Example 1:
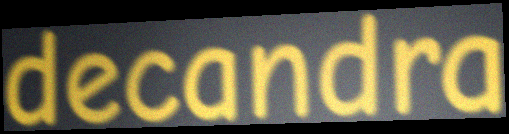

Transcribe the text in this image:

decandra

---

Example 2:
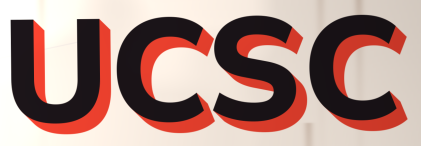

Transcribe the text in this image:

UCSC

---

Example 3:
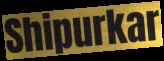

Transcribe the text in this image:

Shipurkar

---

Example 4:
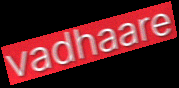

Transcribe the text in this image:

vadhaare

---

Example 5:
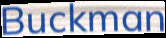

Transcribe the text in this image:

Buckman